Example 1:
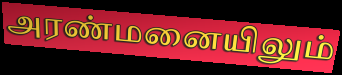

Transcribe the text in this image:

அரண்மனையிலும்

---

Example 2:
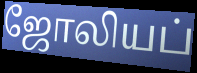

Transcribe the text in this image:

ஜோலியப்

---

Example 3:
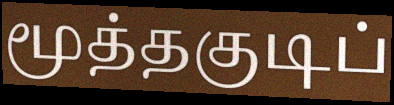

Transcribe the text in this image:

மூத்தகுடிப்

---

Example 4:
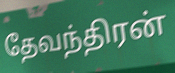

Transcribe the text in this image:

தேவந்திரன்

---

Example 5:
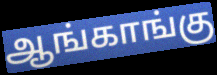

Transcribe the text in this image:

ஆங்காங்கு